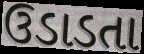
ઉડાડતા